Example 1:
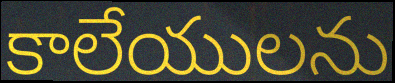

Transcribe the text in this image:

కాలేయులను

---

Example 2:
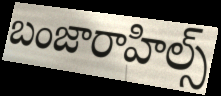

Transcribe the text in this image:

బంజారాహిల్స్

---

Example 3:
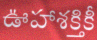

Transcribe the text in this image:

ఊహాశక్తికీ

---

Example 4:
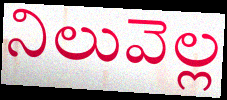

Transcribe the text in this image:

నిలువెల్ల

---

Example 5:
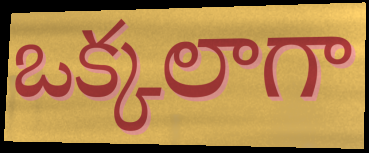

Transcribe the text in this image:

ఒక్కలాగా